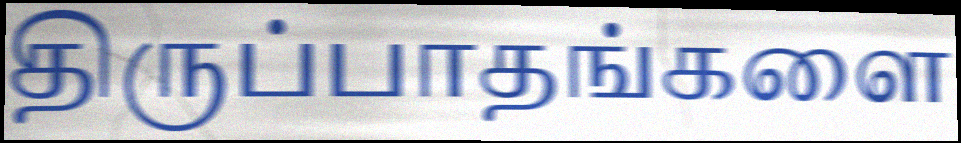
திருப்பாதங்களை